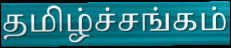
தமிழ்ச்சங்கம்